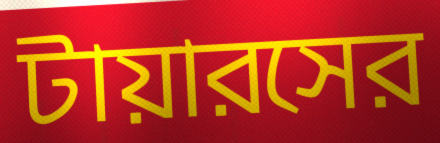
টায়ারসের